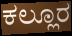
ಕಲ್ಲೂರ